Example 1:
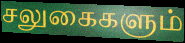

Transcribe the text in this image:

சலுகைகளும்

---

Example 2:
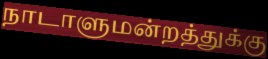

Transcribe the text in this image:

நாடாளுமன்றத்துக்கு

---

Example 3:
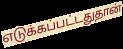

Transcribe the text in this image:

எடுக்கப்பட்டதுதான்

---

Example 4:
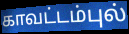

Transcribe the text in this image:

காவட்டம்புல்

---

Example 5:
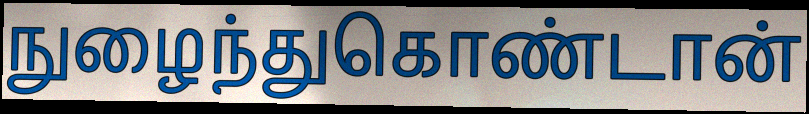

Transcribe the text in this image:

நுழைந்துகொண்டான்